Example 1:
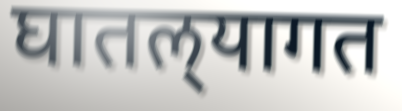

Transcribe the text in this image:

घातल्यागत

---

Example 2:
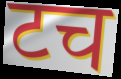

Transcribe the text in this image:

टच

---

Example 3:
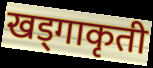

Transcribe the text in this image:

खड्गाकृती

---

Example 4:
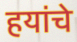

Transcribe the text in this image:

हयांचे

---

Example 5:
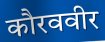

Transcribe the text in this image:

कौरववीर